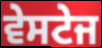
ਵੇਸਟੇਜ